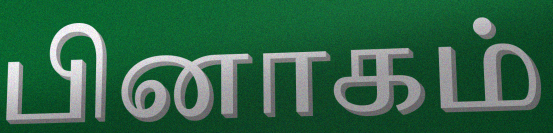
பினாகம்